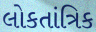
લોકતાંત્રિક